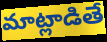
మాట్లాడితే